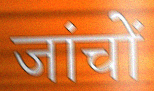
जांचों